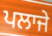
ਪਲਾਜੇ